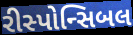
રીસ્પોન્સિબલ